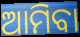
ଆମିବା